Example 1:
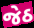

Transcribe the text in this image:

જેઠ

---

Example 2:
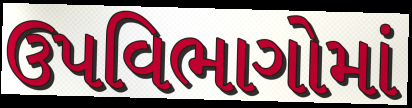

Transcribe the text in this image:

ઉપવિભાગોમાં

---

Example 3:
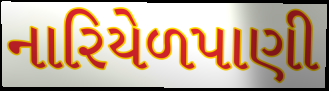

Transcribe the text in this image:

નારિયેળપાણી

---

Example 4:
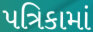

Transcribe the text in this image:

પત્રિકામાં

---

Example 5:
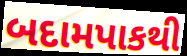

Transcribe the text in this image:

બદામપાકથી